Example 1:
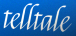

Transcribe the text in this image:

telltale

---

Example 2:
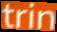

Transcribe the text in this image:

trin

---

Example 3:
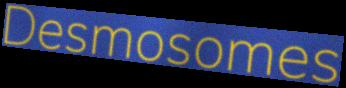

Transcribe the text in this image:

Desmosomes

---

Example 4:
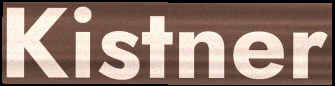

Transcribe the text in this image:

Kistner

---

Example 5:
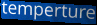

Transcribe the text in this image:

temperture